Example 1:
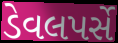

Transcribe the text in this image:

ડેવલપર્સે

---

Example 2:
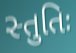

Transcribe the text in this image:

સ્તુતિઃ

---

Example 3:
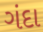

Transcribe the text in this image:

ગંદા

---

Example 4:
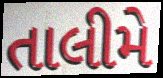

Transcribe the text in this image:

તાલીમે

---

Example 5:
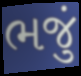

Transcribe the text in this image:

ભજું